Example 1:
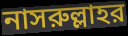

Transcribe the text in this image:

নাসরুল্লাহর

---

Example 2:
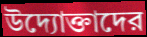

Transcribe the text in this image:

উদ্যোক্তাদের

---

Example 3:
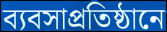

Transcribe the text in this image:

ব্যবসাপ্রতিষ্ঠানে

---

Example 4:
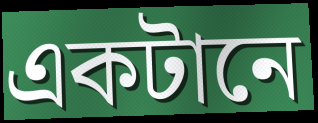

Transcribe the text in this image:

একটানে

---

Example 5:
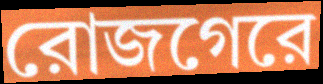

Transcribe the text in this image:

রোজগেরে